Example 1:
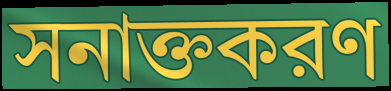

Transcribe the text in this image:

সনাক্তকরণ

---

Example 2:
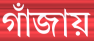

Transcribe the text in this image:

গাঁজায়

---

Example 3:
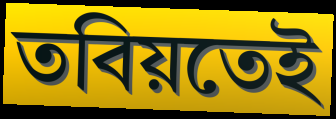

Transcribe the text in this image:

তবিয়তেই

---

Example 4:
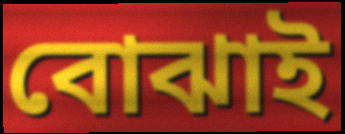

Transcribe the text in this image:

বোঝাই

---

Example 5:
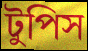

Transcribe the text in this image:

টুপিস